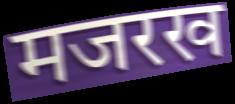
मजरख